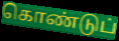
கொண்டுப்